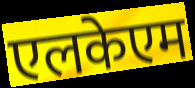
एलकेएम